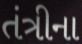
તંત્રીના